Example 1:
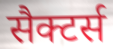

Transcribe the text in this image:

सैक्टर्स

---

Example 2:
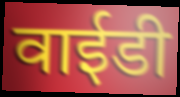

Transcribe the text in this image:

वाईडी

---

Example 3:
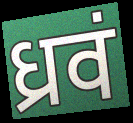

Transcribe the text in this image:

ध्रवं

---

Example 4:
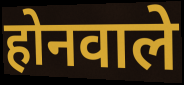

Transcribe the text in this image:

होनवाले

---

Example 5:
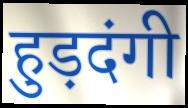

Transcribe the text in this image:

हुड़दंगी